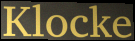
Klocke